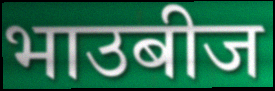
भाउबीज